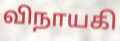
விநாயகி